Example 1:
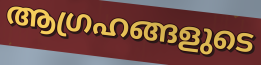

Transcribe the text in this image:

ആഗ്രഹങ്ങളുടെ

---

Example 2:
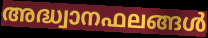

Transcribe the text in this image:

അദ്ധ്വാനഫലങ്ങൾ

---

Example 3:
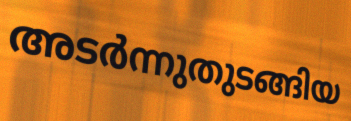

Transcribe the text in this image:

അടർന്നുതുടങ്ങിയ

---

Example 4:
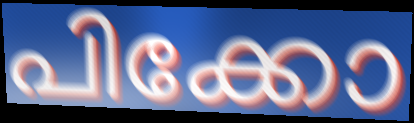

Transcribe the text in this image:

പിക്കോ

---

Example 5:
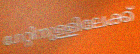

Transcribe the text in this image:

ഗേറ്റിനുള്ളിലേക്ക്